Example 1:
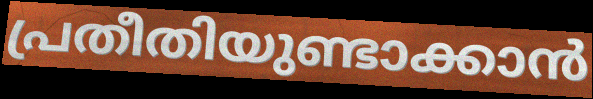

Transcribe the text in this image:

പ്രതീതിയുണ്ടാക്കാൻ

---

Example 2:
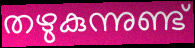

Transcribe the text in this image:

തഴുകുന്നുണ്ട്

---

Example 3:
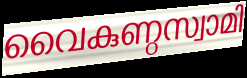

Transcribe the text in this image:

വൈകുണ്ഠസ്വാമി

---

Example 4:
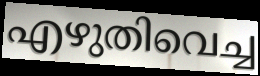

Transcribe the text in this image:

എഴുതിവെച്ച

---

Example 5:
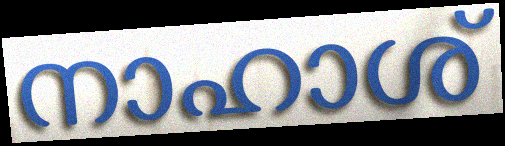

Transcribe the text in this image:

നാഹാശ്